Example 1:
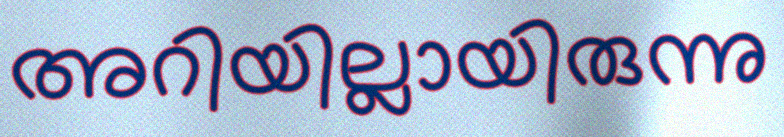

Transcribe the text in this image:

അറിയില്ലായിരുന്നു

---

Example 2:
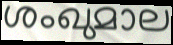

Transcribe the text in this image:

ശംഖുമാല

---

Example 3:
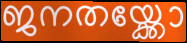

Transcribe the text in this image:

ജനതയ്ക്കോ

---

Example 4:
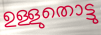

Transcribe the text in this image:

ഉള്ളുതൊട്ടു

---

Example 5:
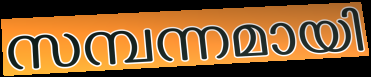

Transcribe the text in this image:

സമ്പന്നമായി